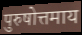
पुरुषोत्तमाय